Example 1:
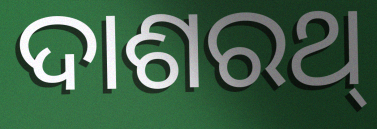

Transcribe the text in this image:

ଦାଶରଥ୍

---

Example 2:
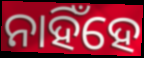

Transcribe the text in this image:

ନାହିଁହେ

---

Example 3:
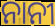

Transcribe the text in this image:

ନାନୀ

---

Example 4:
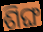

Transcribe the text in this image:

ଶିଙ୍ଘ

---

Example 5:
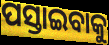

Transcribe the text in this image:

ପସ୍ତାଇବାକୁ